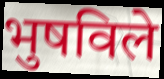
भुषविले